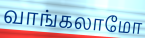
வாங்கலாமோ